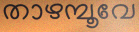
താഴമ്പൂവേ